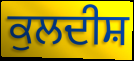
ਕੁਲਦੀਸ਼